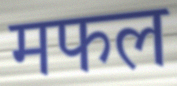
मफल